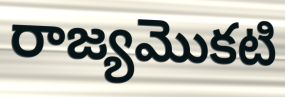
రాజ్యమొకటి